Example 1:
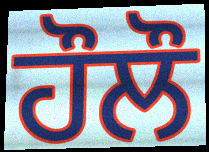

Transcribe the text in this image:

ਹੌਲੌ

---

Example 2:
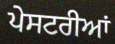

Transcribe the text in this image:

ਪੇਸਟਰੀਆਂ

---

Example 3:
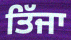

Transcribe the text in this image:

ਤਿੱਜਾ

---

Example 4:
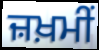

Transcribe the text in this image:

ਜ਼ਖ਼ਮੀਂ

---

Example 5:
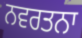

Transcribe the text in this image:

ਨਵਰਤਨਾ